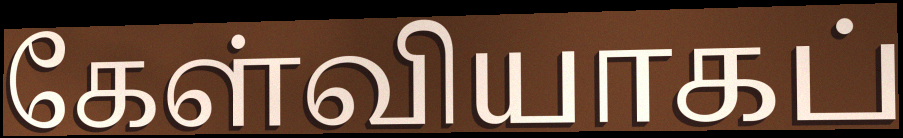
கேள்வியாகப்